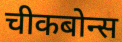
चीकबोन्स